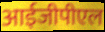
आईजीपीएल